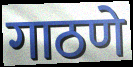
गाठणे